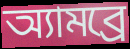
অ্যামব্রে